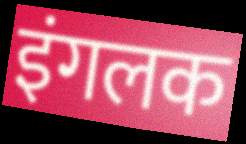
इंगलक